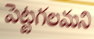
పెట్టగలమని